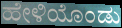
ಹೇಳಿಯೊಂಡು